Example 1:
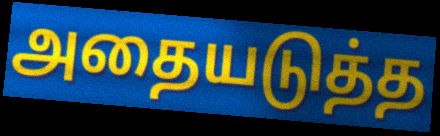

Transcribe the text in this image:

அதையடுத்த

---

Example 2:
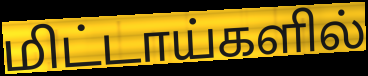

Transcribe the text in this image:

மிட்டாய்களில்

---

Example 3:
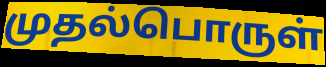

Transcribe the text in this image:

முதல்பொருள்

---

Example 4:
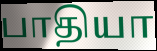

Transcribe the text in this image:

பாதியா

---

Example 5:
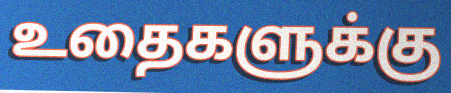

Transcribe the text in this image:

உதைகளுக்கு